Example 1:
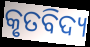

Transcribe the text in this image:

କୃତବିଦ୍ୟ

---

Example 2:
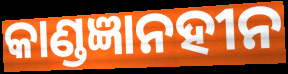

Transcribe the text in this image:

କାଣ୍ଡଜ୍ଞାନହୀନ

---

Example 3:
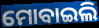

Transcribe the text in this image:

ମୋବାଇଲି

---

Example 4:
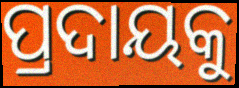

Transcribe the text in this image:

ପ୍ରଦାୟକୁ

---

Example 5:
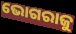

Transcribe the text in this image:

ଭୋଗରାଜୁ